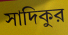
সাদিকুর